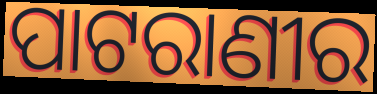
ପାଟରାଣୀର